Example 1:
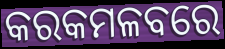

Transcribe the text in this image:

କରକମଳବରେ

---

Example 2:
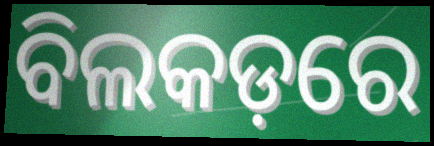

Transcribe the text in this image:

ବିଲକଡ଼ରେ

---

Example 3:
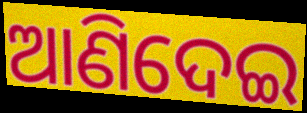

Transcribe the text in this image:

ଆଣିଦେଇ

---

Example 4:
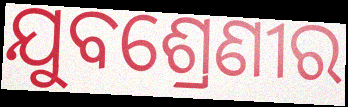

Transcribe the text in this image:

ଯୁବଶ୍ରେଣୀର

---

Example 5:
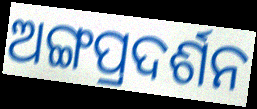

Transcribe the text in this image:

ଅଙ୍ଗପ୍ରଦର୍ଶନ